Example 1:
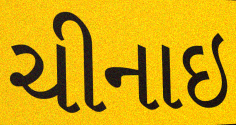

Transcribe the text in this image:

ચીનાઇ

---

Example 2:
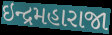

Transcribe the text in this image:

ઇન્દ્રમહારાજા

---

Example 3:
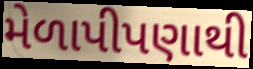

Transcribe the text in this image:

મેળાપીપણાથી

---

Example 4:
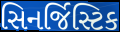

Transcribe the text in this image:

સિનર્જિસ્ટિક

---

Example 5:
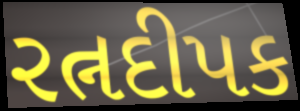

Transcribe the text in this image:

રત્નદીપક